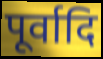
पूर्वादि